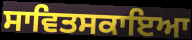
ਸਾਵਿਤਸਕਾਇਆ